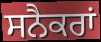
ਸਨੈਕਰਾਂ